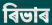
ৰিভাৰ